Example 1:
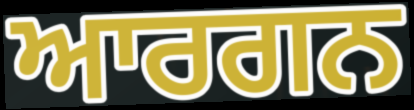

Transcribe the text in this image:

ਆਰਗਨ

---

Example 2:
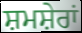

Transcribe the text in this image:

ਸ਼ਮਸ਼ੇਰਾਂ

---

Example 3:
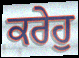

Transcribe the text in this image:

ਕਰੇਹੁ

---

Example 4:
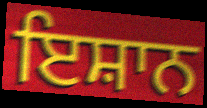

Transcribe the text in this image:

ਇਸ਼ਾਨ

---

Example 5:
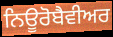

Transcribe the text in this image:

ਨਿਊਰੋਬੈਵੀਅਰ